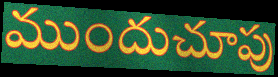
ముందుచూపు